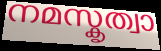
നമസ്കൃത്വാ